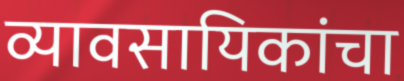
व्यावसायिकांचा